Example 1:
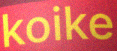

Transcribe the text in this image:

koike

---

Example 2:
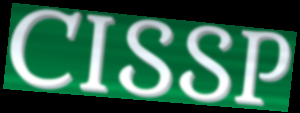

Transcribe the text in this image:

CISSP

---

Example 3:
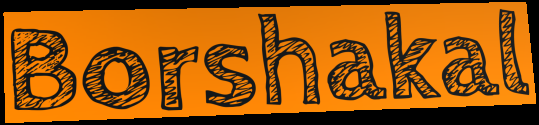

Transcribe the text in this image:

Borshakal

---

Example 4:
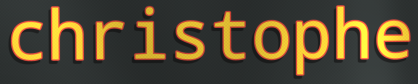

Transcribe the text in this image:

christophe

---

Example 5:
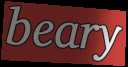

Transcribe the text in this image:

beary